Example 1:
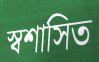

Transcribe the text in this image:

স্বশাসিত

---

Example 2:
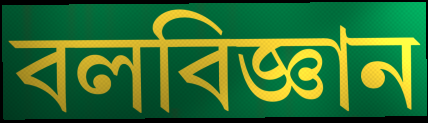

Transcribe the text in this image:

বলবিজ্ঞান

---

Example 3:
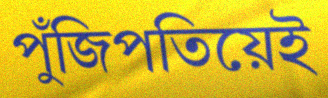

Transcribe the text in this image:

পুঁজিপতিয়েই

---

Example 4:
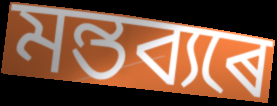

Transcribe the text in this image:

মন্তব্যৰে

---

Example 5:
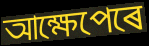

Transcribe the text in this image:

আক্ষেপেৰে